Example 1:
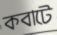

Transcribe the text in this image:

কবাটে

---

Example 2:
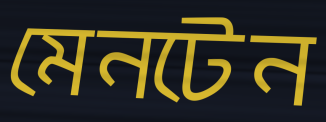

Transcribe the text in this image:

মেনটেন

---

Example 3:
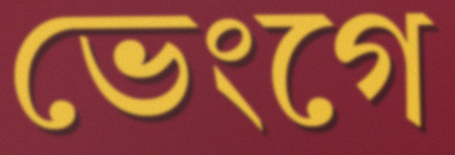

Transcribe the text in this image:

ভেংগে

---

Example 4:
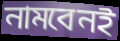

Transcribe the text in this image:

নামবেনই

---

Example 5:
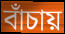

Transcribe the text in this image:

বাঁচায়